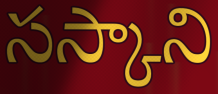
సస్కాని